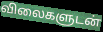
விலைகளுடன்